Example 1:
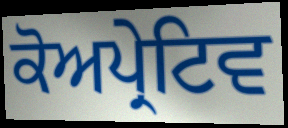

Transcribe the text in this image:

ਕੋਅਪ੍ਰੇਟਿਵ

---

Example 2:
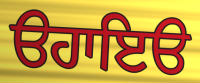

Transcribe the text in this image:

ੳਹਾਇੳ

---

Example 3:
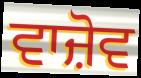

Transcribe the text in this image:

ਵਾਜ਼ੋਵ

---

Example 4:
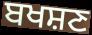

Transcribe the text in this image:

ਬਖਸ਼ਣ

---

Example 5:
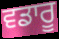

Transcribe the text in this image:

ਵਡਾਰੂ